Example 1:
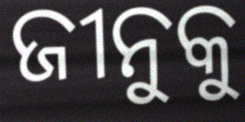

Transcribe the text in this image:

ଜୀନୁକୁ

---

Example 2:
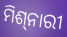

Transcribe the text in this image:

ମିଶ୍‍ନାରୀ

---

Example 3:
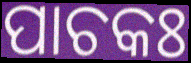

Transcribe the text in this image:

ପାଚକଃ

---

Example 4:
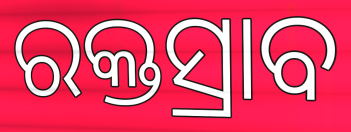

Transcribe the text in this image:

ରକ୍ତସ୍ରାବ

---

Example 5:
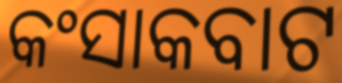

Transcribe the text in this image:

କଂସାକବାଟ